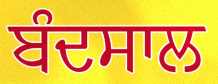
ਬੰਦਸਾਲ